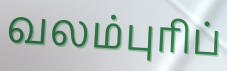
வலம்புரிப்